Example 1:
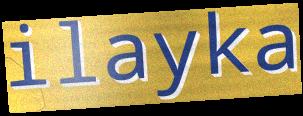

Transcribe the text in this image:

ilayka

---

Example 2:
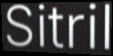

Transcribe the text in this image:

Sitril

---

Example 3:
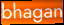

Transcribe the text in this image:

bhagan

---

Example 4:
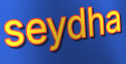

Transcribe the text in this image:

seydha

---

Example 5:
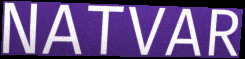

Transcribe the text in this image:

NATVAR